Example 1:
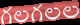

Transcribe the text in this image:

గలగలల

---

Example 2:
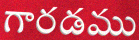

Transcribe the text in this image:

గారడము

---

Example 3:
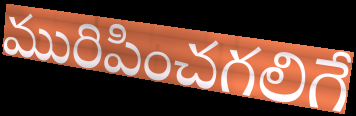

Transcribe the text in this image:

మురిపించగలిగే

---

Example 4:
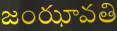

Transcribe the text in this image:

జంఝావతి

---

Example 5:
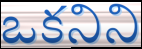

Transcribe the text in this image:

ఒకనిని